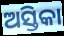
ଅସ୍ତିକା